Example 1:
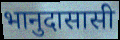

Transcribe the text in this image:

भानुदासासी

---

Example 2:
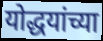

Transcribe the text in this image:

योद्धयांच्या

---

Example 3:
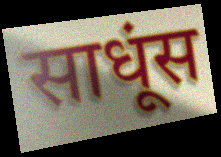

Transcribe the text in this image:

साधूंस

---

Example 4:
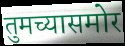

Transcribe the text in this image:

तुमच्यासमोर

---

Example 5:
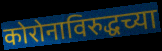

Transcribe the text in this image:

कोरोनाविरुद्धच्या